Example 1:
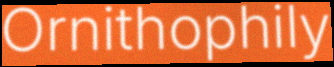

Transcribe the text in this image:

Ornithophily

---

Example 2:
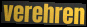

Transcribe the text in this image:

verehren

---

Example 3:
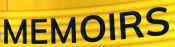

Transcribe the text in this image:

MEMOIRS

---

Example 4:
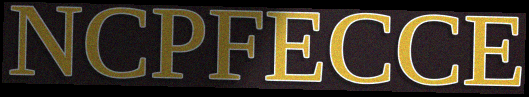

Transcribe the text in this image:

NCPFECCE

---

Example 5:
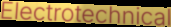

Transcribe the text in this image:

Electrotechnical